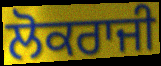
ਲੋਕਰਾਜੀ